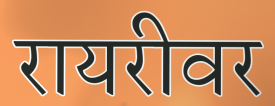
रायरीवर